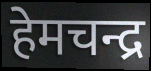
हेमचन्द्र